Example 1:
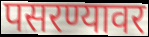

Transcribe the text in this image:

पसरण्यावर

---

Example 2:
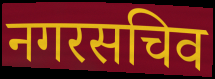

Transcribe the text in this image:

नगरसचिव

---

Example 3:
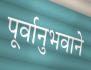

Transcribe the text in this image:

पूर्वानुभवाने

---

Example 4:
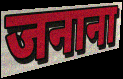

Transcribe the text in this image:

जनाना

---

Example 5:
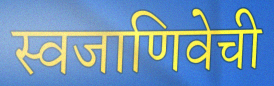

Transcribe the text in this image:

स्वजाणिवेची